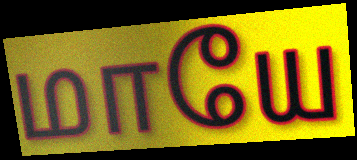
மாயே